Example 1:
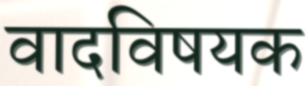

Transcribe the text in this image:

वादविषयक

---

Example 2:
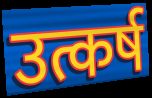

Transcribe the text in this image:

उत्कर्ष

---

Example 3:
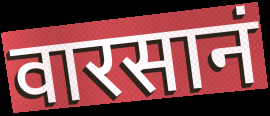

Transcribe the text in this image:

वारसानं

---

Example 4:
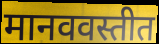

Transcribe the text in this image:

मानववस्तीत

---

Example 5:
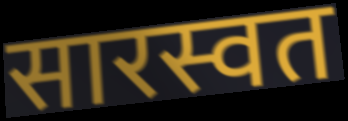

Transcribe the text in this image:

सारस्वत